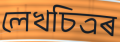
লেখচিত্ৰৰ